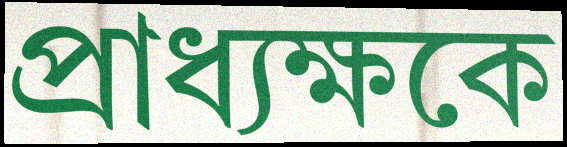
প্রাধ্যক্ষকে